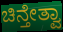
ಚಿನ್ತೇತ್ವಾ